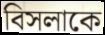
বিসলাকে